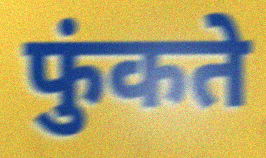
फुंकते